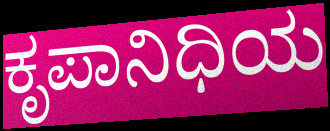
ಕೃಪಾನಿಧಿಯ